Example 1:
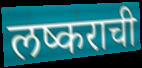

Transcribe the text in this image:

लष्कराची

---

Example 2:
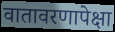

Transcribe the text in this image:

वातावरणापेक्षा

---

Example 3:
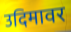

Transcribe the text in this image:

उदिमावर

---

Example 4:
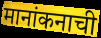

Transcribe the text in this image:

मानांकनाची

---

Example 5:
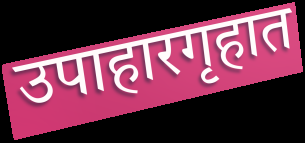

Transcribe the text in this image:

उपाहारगृहात